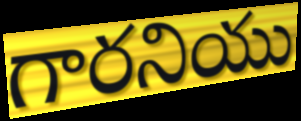
గారనియు